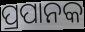
ପ୍ରପାନକ